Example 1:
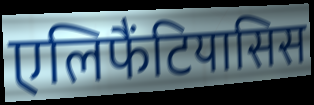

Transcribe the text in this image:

एलिफैंटियासिस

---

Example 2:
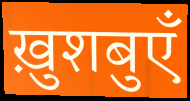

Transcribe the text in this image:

ख़ुशबुएँ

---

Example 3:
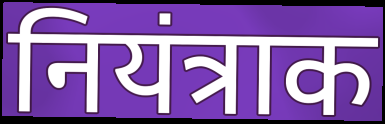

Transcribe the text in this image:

नियंत्राक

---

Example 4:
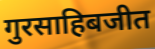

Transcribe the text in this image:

गुरसाहिबजीत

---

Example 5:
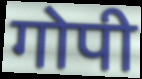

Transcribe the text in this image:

गोपी